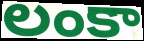
లంకా